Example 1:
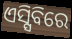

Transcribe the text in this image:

ଏସ୍ସିବିରେ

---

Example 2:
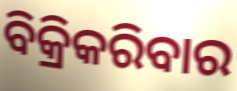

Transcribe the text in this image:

ବିକ୍ରିକରିବାର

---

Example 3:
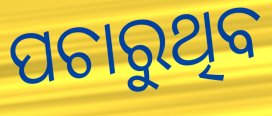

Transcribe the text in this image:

ପଚାରୁଥିବ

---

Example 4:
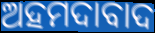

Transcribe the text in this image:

ଅହମଦାବାଦ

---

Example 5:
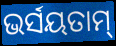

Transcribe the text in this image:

ଭର୍ସୟତାମ୍